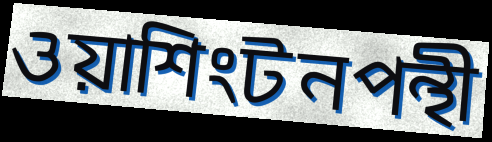
ওয়াশিংটনপন্থী